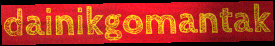
dainikgomantak